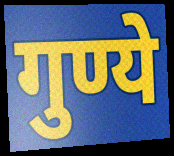
गुण्ये